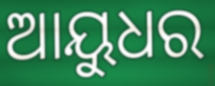
ଆୟୁଧର